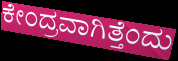
ಕೇಂದ್ರವಾಗಿತ್ತೆಂದು